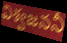
విశ్వజననీ